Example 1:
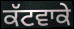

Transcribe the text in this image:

ਕੱਟਵਾਕੇ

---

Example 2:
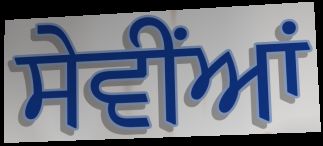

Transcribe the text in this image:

ਸੇਵੀਂਆਂ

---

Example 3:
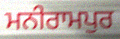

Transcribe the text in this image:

ਮਨੀਰਾਮਪੁਰ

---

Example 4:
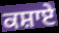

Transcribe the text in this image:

ਕਸ਼ਾਏ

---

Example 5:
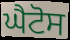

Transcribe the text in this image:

ਘੈਟੋਸ